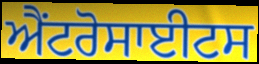
ਐਂਟਰੋਸਾਈਟਸ